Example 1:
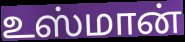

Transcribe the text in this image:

உஸ்மான்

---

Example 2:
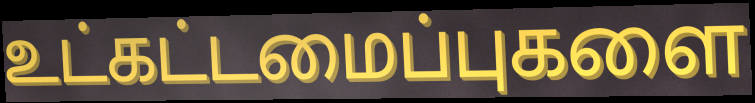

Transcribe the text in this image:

உட்கட்டமைப்புகளை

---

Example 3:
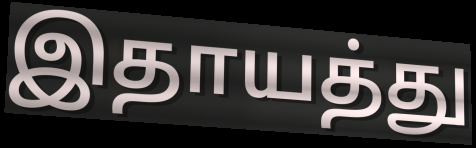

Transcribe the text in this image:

இதாயத்து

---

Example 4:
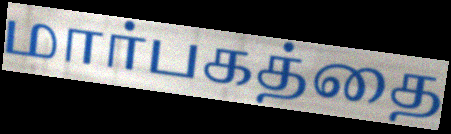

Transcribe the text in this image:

மார்பகத்தை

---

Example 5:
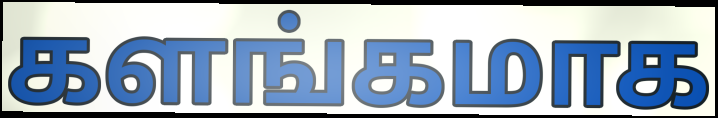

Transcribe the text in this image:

களங்கமாக